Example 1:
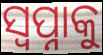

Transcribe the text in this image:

ସ୍ୱପ୍ନାକୁ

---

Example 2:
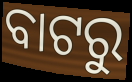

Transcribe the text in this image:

ବାଟରୁ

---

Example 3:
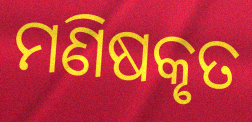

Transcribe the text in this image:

ମଣିଷକୃତ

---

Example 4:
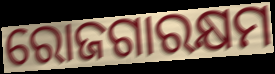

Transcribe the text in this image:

ରୋଜଗାରକ୍ଷମ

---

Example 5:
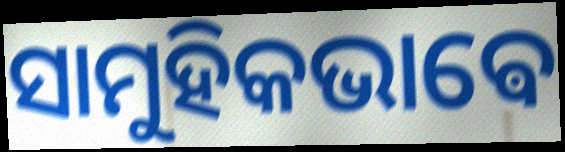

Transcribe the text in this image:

ସାମୁହିକଭାଵେ